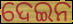
ଦେଇନ